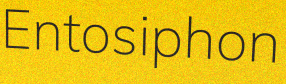
Entosiphon